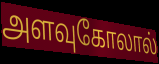
அளவுகோலால்